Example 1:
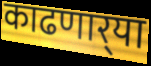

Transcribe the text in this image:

काढणार्‍या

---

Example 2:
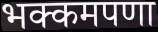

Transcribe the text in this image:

भक्कमपणा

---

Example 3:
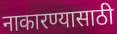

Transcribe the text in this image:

नाकारण्यासाठी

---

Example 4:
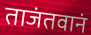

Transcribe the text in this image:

ताजंतवानं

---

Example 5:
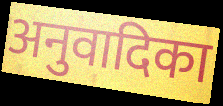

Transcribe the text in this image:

अनुवादिका